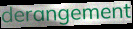
derangement